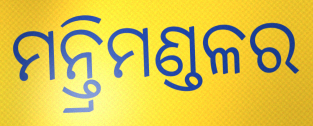
ମନ୍ତ୍ରିମଣ୍ଡଳର